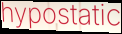
hypostatic